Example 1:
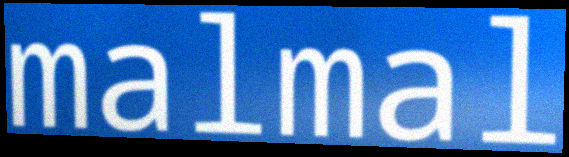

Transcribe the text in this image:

malmal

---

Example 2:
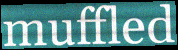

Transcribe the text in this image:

muffled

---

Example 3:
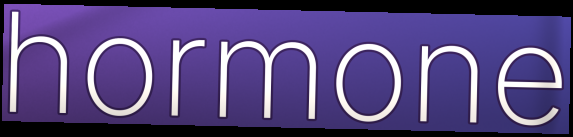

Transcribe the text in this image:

hormone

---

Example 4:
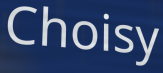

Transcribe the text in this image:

Choisy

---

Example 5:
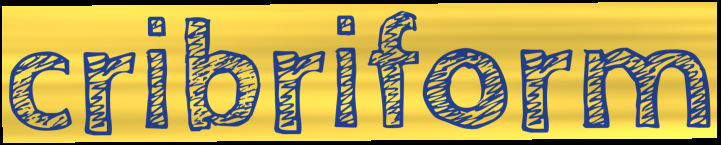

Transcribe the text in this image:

cribriform